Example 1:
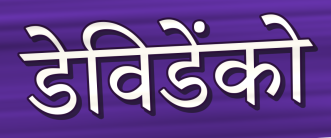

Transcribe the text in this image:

डेविडेंको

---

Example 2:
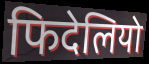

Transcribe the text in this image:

फिदेलियो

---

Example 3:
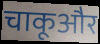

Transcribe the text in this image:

चाकूऔर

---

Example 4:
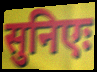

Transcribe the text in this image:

सुनिएः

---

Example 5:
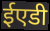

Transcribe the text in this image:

ईएडी